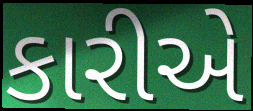
કારીએ